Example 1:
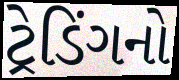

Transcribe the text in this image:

ટ્રેડિંગનો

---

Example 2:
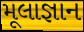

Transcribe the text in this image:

મૂલાજ્ઞાન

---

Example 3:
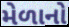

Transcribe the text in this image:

મેળાનો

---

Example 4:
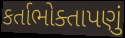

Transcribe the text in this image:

કર્તાભોક્તાપણું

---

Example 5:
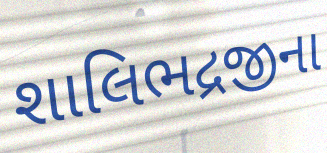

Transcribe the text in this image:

શાલિભદ્રજીના